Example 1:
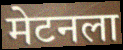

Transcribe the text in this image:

मेटनला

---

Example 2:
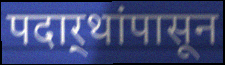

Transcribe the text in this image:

पदार्थांपासून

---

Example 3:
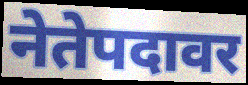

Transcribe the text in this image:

नेतेपदावर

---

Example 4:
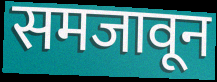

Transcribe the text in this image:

समजावून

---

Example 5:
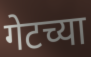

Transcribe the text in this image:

गेटच्या